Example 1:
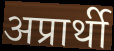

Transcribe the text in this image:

अप्रार्थी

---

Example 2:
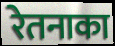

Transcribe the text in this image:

रेतनाका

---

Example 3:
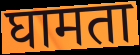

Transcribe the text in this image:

घामता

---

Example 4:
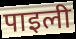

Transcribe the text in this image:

पाइली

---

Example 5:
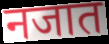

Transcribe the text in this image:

नजात